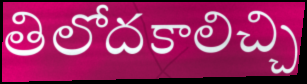
తిలోదకాలిచ్చి